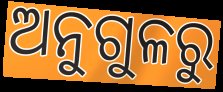
ଅନୁଗୁଳରୁ